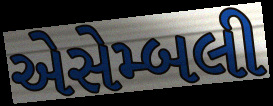
એસેમ્બલી